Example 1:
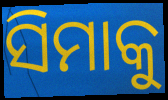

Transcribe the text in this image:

ସିମାକୁ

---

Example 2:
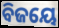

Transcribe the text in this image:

ବିଜୟେ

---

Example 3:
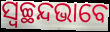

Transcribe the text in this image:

ସ୍ୱଚ୍ଛନ୍ଦଭାବେ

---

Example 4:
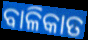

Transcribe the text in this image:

ବାଳିକାତ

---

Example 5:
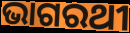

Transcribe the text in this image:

ଭାଗରଥୀ